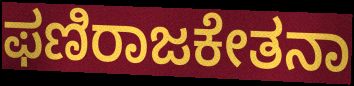
ಫಣಿರಾಜಕೇತನಾ